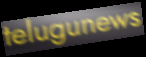
telugunews